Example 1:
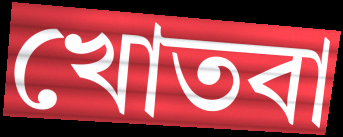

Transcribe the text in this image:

খোতবা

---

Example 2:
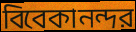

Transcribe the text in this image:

বিবেকানন্দর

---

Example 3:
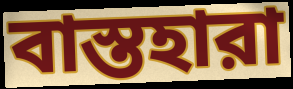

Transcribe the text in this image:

বাস্তহারা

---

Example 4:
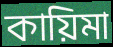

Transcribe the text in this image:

কায়িমা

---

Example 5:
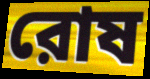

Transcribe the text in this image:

রোষ